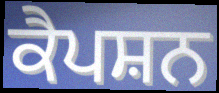
ਕੈਪਸ਼ਨ